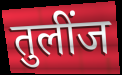
तुलींज